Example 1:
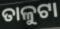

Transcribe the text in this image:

ତାଳୁଟା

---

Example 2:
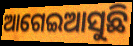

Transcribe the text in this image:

ଆଗେଇଆସୁଛି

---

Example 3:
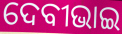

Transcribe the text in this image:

ଦେବୀଭାଇ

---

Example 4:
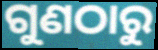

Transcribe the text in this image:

ଗୁଣଠାରୁ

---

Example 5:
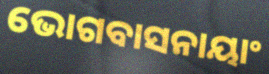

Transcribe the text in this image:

ଭୋଗବାସନାୟାଂ